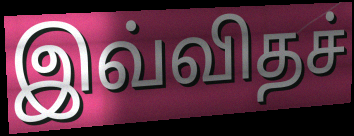
இவ்விதச்